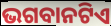
ଭଗବାନଟିଏ